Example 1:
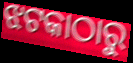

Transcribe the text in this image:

ଝଟକାଠାରୁ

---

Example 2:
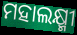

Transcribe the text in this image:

ମହାଲକ୍ଷ୍ମୀ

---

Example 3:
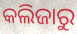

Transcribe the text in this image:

କଲିଜାରୁ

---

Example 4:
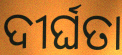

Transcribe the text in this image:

ଦୀର୍ଘତା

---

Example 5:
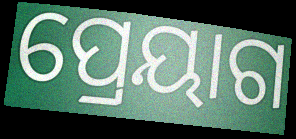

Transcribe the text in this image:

ପ୍ରେୟାଗ